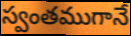
స్వంతముగానే